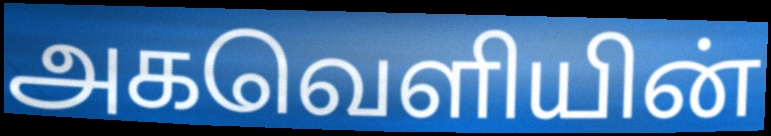
அகவெளியின்